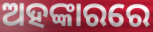
ଅହଙ୍କାରରେ